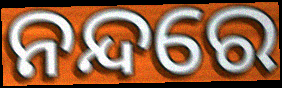
ନନ୍ଦରେ